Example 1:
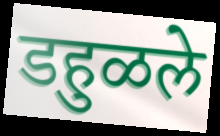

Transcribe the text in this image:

डहुळले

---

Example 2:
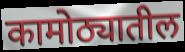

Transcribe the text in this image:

कामोठ्यातील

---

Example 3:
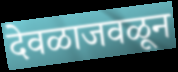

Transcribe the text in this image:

देवळाजवळून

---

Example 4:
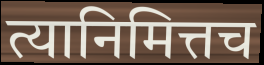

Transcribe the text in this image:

त्यानिमित्तच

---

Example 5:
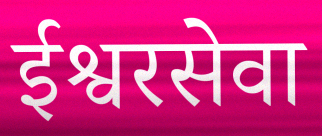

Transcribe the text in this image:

ईश्वरसेवा